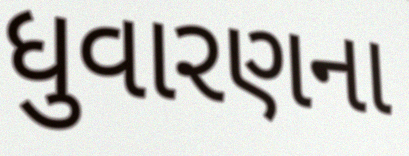
ધુવારણના